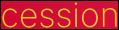
cession